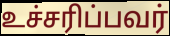
உச்சரிப்பவர்